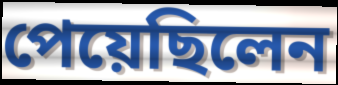
পেয়েছিলেন